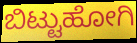
ಬಿಟ್ಟುಹೋಗಿ